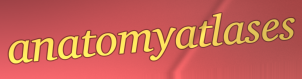
anatomyatlases